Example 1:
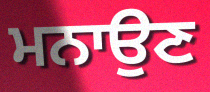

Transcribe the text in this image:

ਮਨਾਉਣ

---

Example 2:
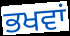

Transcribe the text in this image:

ਭਖਵਾਂ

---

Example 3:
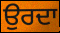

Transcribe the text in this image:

ਉਰਦਾ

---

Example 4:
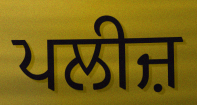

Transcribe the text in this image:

ਪਲੀਜ਼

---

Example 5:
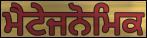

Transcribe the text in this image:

ਮੈਟੇਜਨੋਮਿਕ